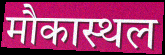
मौकास्थल